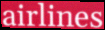
airlines